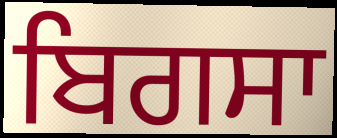
ਬਿਗਸਾ